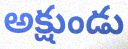
అక్షుండు